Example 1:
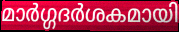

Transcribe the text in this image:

മാർഗ്ഗദർശകമായി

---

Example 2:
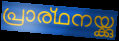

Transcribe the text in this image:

പ്രാര്ഥനയ്ക്കു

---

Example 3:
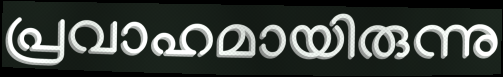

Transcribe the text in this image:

പ്രവാഹമായിരുന്നു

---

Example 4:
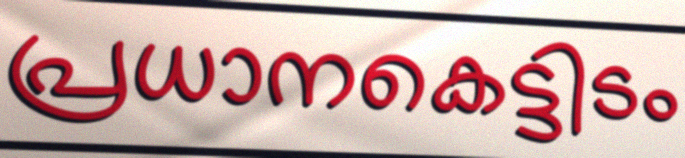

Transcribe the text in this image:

പ്രധാനകെട്ടിടം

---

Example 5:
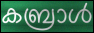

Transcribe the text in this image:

കബ്രാൾ